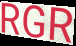
RGR